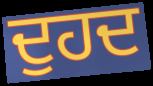
ਦੁਹਦ